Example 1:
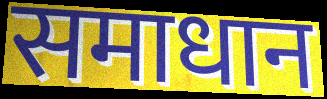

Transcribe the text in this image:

समाधान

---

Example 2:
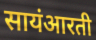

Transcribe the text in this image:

सायंआरती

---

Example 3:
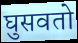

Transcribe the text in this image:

घुसवतो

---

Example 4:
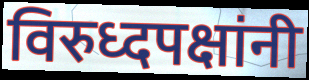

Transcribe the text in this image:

विरुध्दपक्षांनी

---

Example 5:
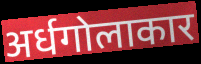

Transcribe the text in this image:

अर्धगोलाकार